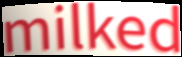
milked